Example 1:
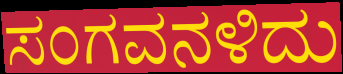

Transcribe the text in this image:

ಸಂಗವನಳಿದು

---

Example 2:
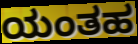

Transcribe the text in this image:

ಯಂತಹ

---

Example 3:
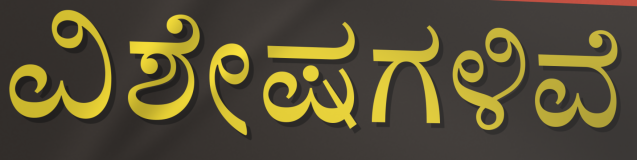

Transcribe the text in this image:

ವಿಶೇಷಗಳಿವೆ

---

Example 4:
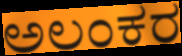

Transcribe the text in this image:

ಅಲಂಕರ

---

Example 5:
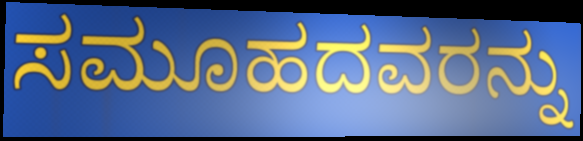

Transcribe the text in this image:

ಸಮೂಹದವರನ್ನು